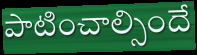
పాటించాల్సిందే